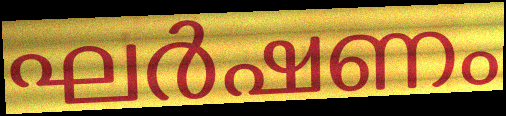
ഘർഷണം